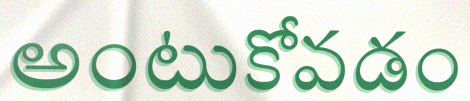
అంటుకోవడం